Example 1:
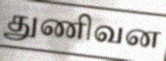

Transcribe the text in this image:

துணிவன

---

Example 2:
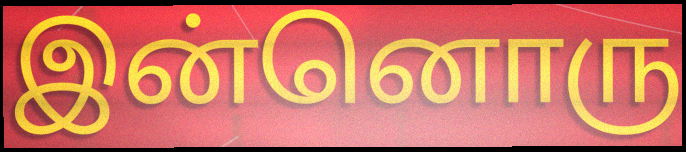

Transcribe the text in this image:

இன்னொரு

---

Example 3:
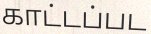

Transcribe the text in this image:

காட்டப்பட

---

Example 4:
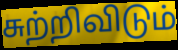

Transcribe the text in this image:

சுற்றிவிடும்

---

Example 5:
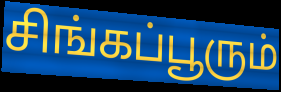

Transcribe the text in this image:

சிங்கப்பூரும்